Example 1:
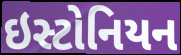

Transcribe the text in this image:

ઇસ્ટોનિયન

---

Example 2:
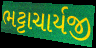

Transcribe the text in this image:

ભટ્ટાચાર્યજી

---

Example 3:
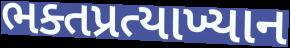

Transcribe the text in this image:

ભક્તપ્રત્યાખ્યાન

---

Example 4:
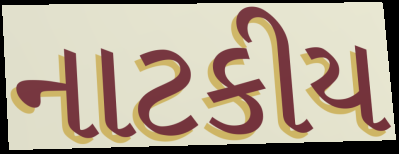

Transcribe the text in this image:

નાટકીય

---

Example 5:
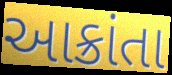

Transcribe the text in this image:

આક્રાંતા